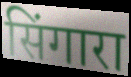
सिंगारा